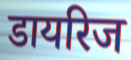
डायरिज